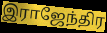
இராஜேந்திர